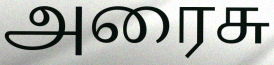
அரைசு